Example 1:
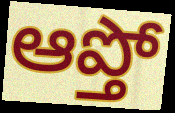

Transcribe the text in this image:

ఆప్తో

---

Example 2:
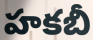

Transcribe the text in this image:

హకబీ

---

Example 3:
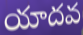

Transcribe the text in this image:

యాదవ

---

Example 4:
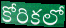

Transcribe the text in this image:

కోరికలో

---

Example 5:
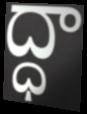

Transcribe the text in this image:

ద్ధా